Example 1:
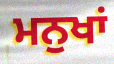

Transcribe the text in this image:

ਮਨੁਖਾਂ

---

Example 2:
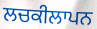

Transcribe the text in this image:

ਲਚਕੀਲਾਪਨ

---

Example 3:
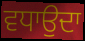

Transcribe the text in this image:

ਵਧਾਉਦਾ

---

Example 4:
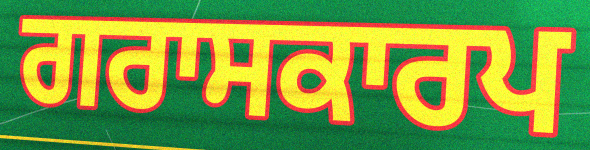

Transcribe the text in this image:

ਗਰਾਸਕਾਰਪ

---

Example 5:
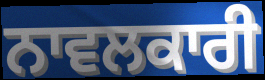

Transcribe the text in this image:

ਨਾਵਲਕਾਰੀ